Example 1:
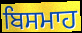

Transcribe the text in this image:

ਬਿਸਮਾਹ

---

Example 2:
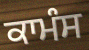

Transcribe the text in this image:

ਕਾਮੰਸ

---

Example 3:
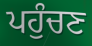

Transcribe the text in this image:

ਪਹੁੰਚਣ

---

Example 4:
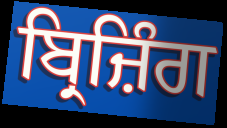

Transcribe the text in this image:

ਬ੍ਰਿਜ਼ਿੰਗ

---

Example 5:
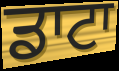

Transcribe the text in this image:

ਡਾਟਾ